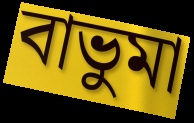
বাভুমা